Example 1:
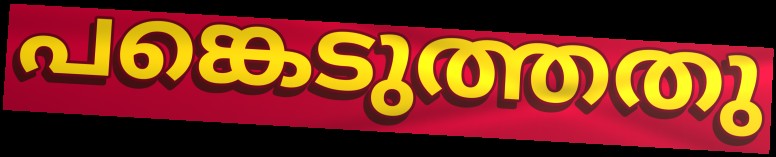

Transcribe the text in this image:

പങ്കെടുത്തതു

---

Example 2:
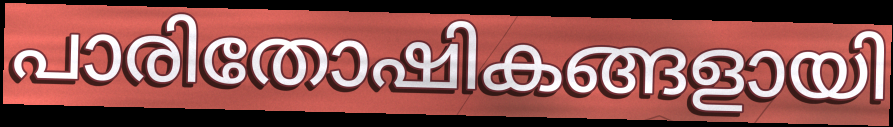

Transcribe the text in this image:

പാരിതോഷികങ്ങളായി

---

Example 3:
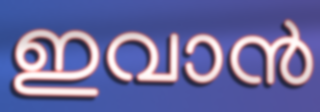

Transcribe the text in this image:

ഇവാൻ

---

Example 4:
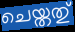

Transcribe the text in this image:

ചെയ്തതു്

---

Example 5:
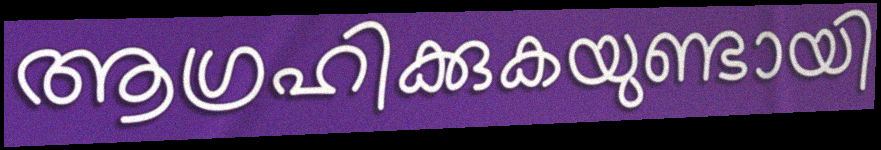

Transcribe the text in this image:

ആഗ്രഹിക്കുകയുണ്ടായി